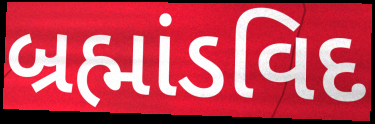
બ્રહ્માંડવિદ